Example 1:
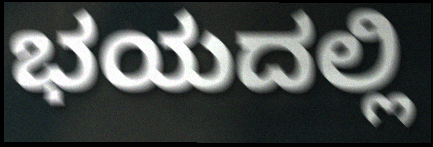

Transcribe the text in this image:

ಭಯದಲ್ಲಿ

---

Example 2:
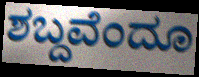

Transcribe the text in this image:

ಶಬ್ದವೆಂದೂ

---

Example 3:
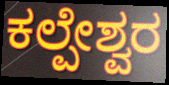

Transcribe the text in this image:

ಕಲ್ಪೇಶ್ವರ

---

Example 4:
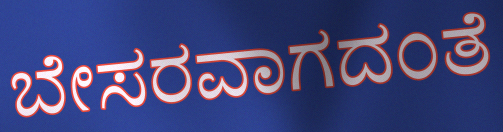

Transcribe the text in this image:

ಬೇಸರವಾಗದಂತೆ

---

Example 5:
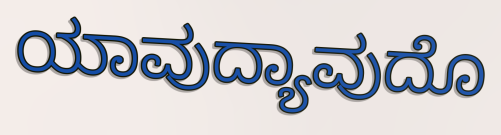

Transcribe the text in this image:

ಯಾವುದ್ಯಾವುದೊ